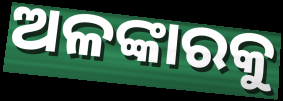
ଅଳଙ୍କାରକୁ